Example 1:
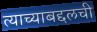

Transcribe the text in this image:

त्याच्याबद्दलची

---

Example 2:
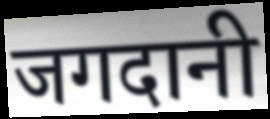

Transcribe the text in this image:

जगदानी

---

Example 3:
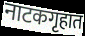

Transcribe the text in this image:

नाटकगृहात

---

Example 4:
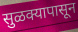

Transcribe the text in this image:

सुळक्यापासून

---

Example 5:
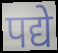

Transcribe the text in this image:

पद्ये